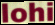
lohi